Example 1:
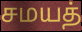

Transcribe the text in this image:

சமயத்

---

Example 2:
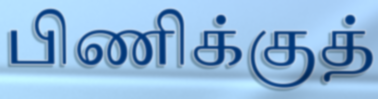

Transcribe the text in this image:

பிணிக்குத்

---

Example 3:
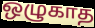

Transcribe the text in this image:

ஒழுகாத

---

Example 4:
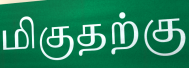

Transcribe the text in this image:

மிகுதற்கு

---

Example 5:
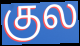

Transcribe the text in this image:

குல